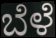
ಬೆಳೆ